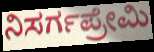
ನಿಸರ್ಗಪ್ರೇಮಿ